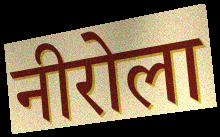
नीरोला